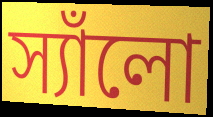
স্যাঁলো